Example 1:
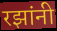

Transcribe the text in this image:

रझांनी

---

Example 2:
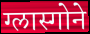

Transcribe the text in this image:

ग्लास्गोने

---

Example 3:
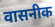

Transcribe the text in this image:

वासनीक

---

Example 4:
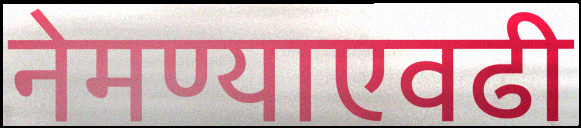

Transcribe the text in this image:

नेमण्याएवढी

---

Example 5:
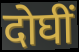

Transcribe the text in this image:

दोघीं